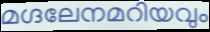
മഗ്ദലേനമറിയവും